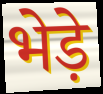
भेड़े